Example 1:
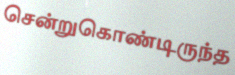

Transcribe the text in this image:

சென்றுகொண்டிருந்த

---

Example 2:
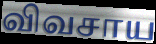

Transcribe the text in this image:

விவசாய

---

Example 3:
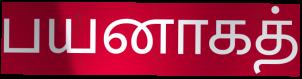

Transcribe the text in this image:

பயனாகத்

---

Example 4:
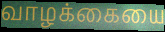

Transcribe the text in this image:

வாழக்கையை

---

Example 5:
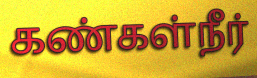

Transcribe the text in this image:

கண்கள்நீர்